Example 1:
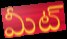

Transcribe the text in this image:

మీట్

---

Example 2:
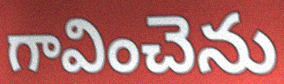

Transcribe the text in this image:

గావించెను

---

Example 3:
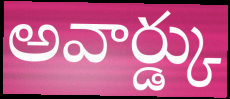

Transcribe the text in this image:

అవార్డ్కు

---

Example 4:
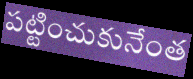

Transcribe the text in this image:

పట్టించుకునేంత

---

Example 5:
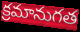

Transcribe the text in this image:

క్రమానుగత